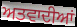
ਅਤਵਾਦੀਆਂ